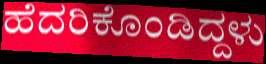
ಹೆದರಿಕೊಂಡಿದ್ದಳು